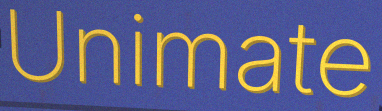
Unimate